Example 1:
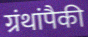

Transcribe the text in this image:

ग्रंथांपैकी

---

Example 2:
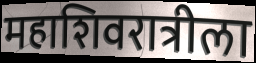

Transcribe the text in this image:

महाशिवरात्रीला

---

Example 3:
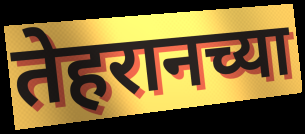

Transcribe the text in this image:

तेहरानच्या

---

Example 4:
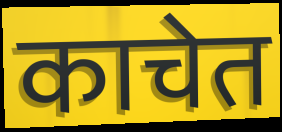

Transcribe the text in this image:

काचेत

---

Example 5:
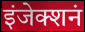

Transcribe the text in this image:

इंजेक्शनं